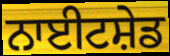
ਨਾਈਟਸ਼ੇਡ